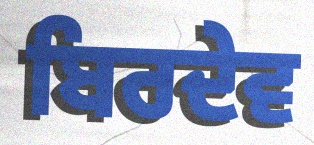
ਬਿਰਦੇਵ